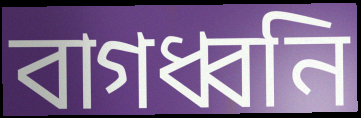
বাগধ্বনি